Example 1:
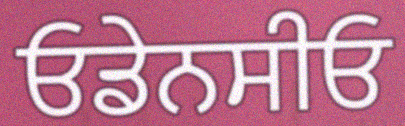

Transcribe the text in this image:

ਓਡੇਨਸੀਓ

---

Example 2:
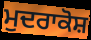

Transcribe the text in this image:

ਮੁਦਰਾਕੋਸ਼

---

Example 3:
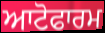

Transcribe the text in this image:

ਆਟੋਫਾਰਮ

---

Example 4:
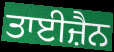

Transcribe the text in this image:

ਤਾਈਜ਼ੈਨ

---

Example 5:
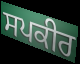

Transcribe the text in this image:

ਸਪਕੀਰ